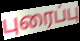
புரைப்பு